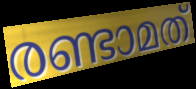
രണ്ടാമത്